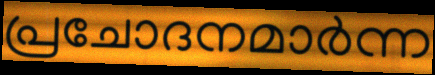
പ്രചോദനമാർന്ന